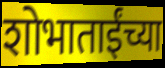
शोभाताईंच्या